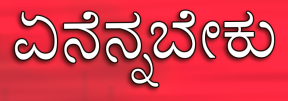
ಏನೆನ್ನಬೇಕು